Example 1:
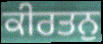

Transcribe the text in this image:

ਕੀਰਤਨੁ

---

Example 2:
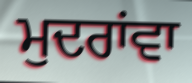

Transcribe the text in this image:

ਮੁਦਰਾਂਵਾ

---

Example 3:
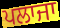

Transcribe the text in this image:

ਪਲਾਜਾ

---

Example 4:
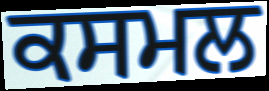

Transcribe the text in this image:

ਕਸਮਲ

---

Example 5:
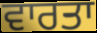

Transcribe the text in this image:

ਵਾਰਤਾ